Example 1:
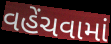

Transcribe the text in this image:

વહેંચવામાં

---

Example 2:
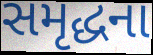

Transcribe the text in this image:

સમૃદ્ધના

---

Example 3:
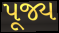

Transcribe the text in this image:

પૂજ્ય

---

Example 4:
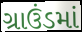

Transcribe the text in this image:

ગ્રાઉંડમાં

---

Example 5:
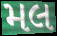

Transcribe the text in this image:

મલ